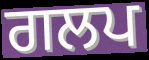
ਗਲਪ